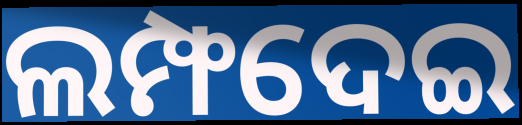
ଲମ୍ଫଦେଇ